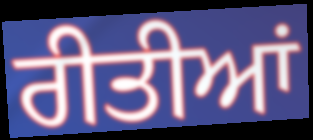
ਰੀਤੀਆਂ